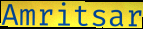
Amritsar